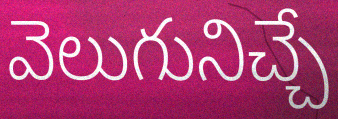
వెలుగునిచ్చే